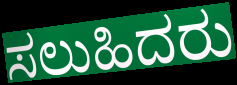
ಸಲುಹಿದರು